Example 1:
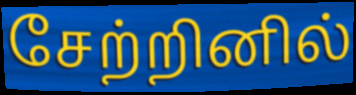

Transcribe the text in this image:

சேற்றினில்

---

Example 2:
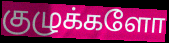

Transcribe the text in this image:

குழுக்களோ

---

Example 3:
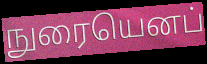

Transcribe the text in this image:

நுரையெனப்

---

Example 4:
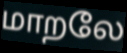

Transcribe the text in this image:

மாறலே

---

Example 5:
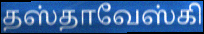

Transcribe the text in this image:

தஸ்தாவேஸ்கி